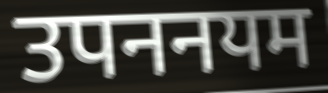
उपननयम